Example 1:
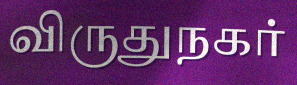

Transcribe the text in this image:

விருதுநகர்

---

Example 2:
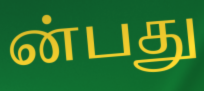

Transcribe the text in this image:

ன்பது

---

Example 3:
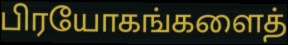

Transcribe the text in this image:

பிரயோகங்களைத்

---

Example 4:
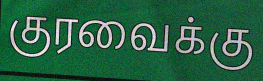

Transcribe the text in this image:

குரவைக்கு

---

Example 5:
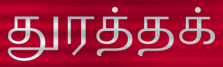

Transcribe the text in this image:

துரத்தக்